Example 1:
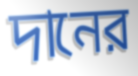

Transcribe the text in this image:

দানের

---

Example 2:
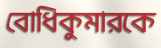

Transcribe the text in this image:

বোধিকুমারকে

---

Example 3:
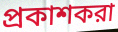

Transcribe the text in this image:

প্রকাশকরা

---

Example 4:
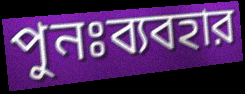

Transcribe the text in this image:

পুনঃব্যবহার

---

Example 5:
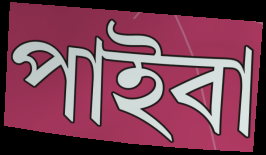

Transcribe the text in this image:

পাইবা